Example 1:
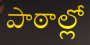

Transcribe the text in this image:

పాఠాల్లో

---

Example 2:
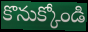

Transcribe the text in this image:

కొనుక్కోండి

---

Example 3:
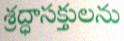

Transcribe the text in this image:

శ్రద్ధాసక్తులను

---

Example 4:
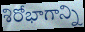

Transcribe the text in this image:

శిరోభాగాన్ని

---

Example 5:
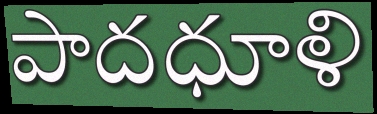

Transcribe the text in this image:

పాదధూళి